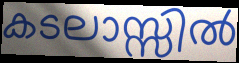
കടലാസ്സിൽ